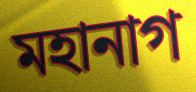
মহানাগ